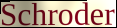
Schroder